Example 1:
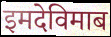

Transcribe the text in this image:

इमदेविमाब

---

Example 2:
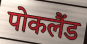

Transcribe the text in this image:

पोकलैंड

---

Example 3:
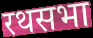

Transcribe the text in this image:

रथसभा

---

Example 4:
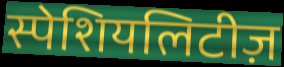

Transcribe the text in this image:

स्पेशियलिटीज़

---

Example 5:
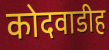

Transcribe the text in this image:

कोदवाडीह